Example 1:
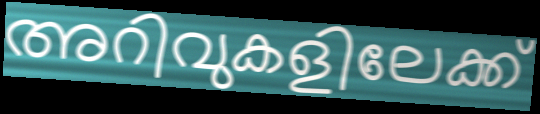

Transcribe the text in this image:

അറിവുകളിലേക്ക്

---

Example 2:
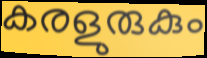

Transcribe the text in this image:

കരളുരുകും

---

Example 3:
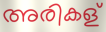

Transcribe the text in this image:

അരികള്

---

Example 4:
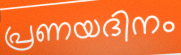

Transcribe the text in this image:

പ്രണയദിനം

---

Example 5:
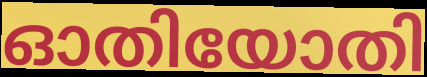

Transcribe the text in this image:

ഓതിയോതി